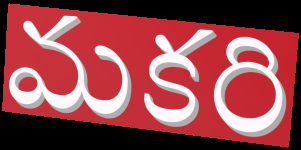
మకరి